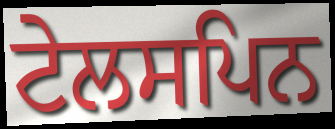
ਟੇਲਸਪਿਨ